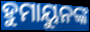
ହୁମାୟୁନଙ୍କ